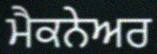
ਮੈਕਨੇਅਰ